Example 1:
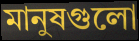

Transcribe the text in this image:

মানুষগুলো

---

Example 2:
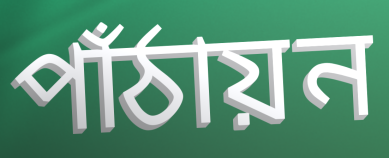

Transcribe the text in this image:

পাঁঠায়ন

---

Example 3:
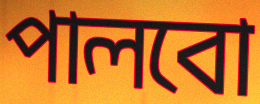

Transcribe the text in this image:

পালবো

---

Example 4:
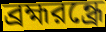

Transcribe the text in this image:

ব্রহ্মরন্ধ্রে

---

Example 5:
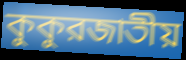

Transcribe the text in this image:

কুকুরজাতীয়